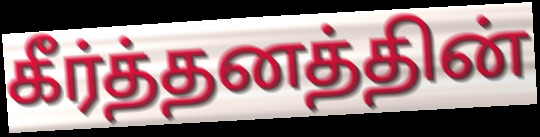
கீர்த்தனத்தின்